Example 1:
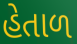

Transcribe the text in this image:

હેતાળ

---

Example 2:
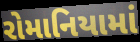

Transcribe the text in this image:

રોમાનિયામાં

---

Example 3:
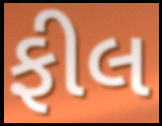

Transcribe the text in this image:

ફીલ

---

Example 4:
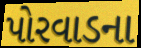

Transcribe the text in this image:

પોરવાડના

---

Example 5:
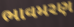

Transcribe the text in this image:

ભાવમરણ